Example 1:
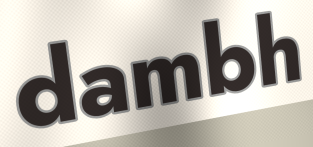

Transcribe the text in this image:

dambh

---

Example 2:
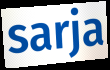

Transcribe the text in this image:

sarja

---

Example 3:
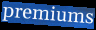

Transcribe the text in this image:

premiums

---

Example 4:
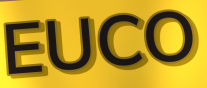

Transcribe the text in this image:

EUCO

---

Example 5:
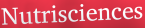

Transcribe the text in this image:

Nutrisciences